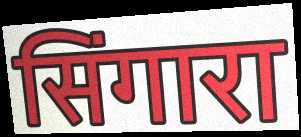
सिंगारा